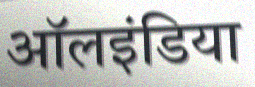
ऑलइंडिया